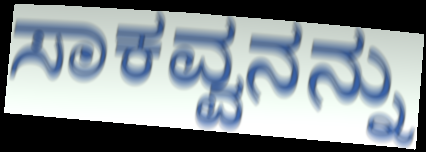
ಸಾಕವ್ವನನ್ನು